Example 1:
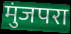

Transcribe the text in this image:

मुंजपरा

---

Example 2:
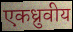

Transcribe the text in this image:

एकध्रुवीय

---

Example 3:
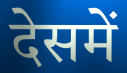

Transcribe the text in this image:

देसमें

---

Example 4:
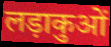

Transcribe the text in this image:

लड़ाकुओं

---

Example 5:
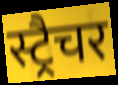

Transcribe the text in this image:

स्ट्रैचर